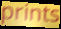
prints